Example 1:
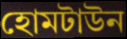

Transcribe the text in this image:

হোমটাউন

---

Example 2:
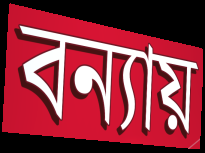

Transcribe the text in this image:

বন্যায়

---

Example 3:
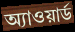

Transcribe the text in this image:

অ্যাওয়ার্ড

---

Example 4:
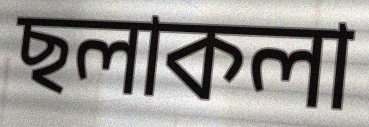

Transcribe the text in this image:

ছলাকলা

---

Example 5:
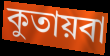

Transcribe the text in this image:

কুতায়বা